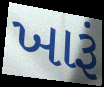
ખારૂં